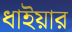
ধাইয়ার